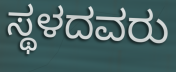
ಸ್ಥಳದವರು